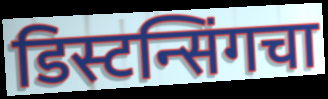
डिस्टन्सिंगचा